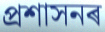
প্ৰশাসনৰ